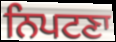
ਨਿਪਟਣਾ